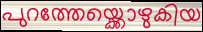
പുറത്തേയ്ക്കൊഴുകിയ